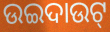
ଉଇଦାଉଟ୍